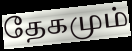
தேகமும்